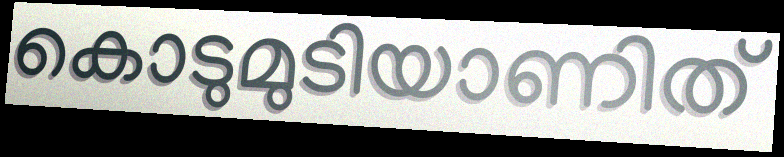
കൊടുമുടിയാണിത്